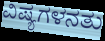
ವಿಷ್ಯಗಳನತು